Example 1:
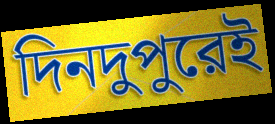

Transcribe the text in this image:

দিনদুপুরেই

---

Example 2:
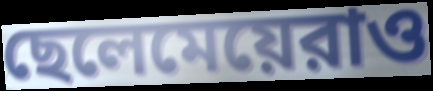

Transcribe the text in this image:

ছেলেমেয়েরাও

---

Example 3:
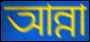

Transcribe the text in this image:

আন্না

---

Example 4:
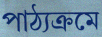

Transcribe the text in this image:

পাঠ্যক্রমে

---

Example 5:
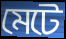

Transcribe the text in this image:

মেটে